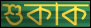
শুকাক